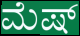
ಮೆಷ್